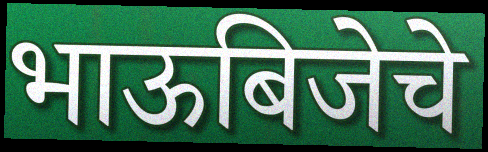
भाऊबिजेचे